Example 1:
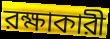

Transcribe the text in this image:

রক্ষাকারী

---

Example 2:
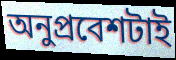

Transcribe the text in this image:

অনুপ্রবেশটাই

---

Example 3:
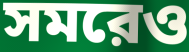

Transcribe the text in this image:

সমরেও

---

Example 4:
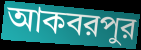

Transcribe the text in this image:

আকবরপুর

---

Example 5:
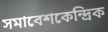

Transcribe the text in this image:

সমাবেশকেন্দ্রিক